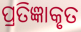
ପ୍ରତିଜ୍ଞାକୃତ